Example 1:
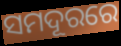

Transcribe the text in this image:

ସମଦୂରରେ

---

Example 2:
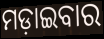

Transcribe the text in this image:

ମଡ଼ାଇବାର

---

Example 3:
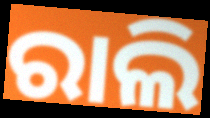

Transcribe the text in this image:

ରାଲି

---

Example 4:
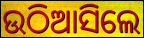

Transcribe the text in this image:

ଉଠିଆସିଲେ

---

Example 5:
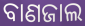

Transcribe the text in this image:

ବାଣଜାଲ